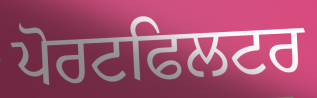
ਪੋਰਟਫਿਲਟਰ